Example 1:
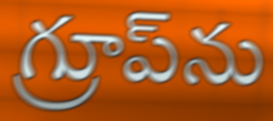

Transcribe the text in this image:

గ్రూప్‌ను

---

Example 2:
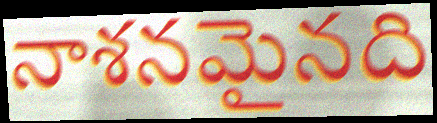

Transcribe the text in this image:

నాశనమైనది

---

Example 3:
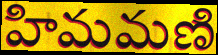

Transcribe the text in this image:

హిమమణి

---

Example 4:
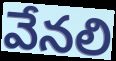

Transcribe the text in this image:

వేనలి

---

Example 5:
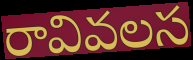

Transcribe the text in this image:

రావివలస